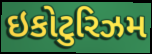
ઇકોટુરિઝમ